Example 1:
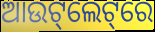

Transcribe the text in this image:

ଆଉଟ୍‌ଲେଟ୍‌ରେ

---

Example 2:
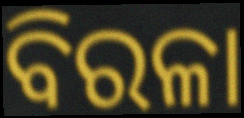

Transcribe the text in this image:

ବିରଳା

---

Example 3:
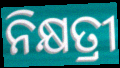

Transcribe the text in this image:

ନିକ୍ଷତ୍ରୀ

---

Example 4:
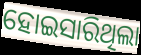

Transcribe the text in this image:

ହୋଇସାରିଥିଲା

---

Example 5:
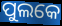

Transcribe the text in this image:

ପୁଲକେ